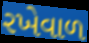
રખેવાળ